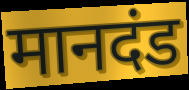
मानदंड